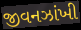
જીવનઝાંખી